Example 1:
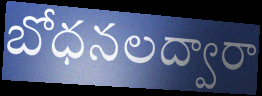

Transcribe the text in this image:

బోధనలద్వారా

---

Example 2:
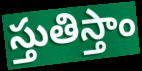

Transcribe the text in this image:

స్తుతిస్తాం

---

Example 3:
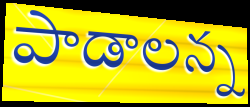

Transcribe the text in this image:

పాడాలన్న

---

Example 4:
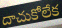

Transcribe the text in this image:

దాచుకోలేక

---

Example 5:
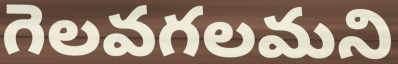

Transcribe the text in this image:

గెలవగలమని